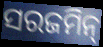
ସରଜମିନ୍